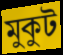
মুকুট